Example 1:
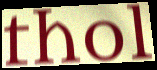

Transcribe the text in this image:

thol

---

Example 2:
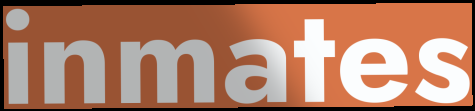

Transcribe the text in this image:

inmates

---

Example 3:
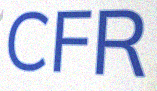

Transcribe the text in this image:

CFR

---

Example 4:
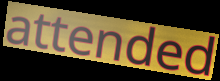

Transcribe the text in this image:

attended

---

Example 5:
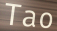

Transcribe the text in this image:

Tao